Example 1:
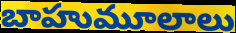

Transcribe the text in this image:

బాహుమూలాలు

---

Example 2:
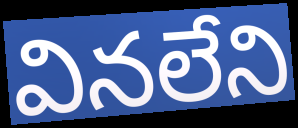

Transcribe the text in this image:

వినలేని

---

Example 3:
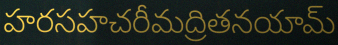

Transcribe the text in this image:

హరసహచరీమద్రితనయామ్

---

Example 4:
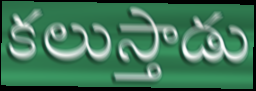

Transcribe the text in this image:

కలుస్తాడు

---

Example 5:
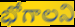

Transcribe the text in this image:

భోగాలని